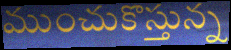
ముంచుకొస్తున్న